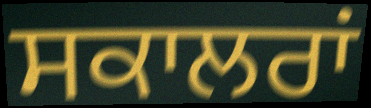
ਸਕਾਲਰਾਂ